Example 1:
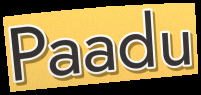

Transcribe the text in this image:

Paadu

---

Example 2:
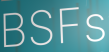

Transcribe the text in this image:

BSFs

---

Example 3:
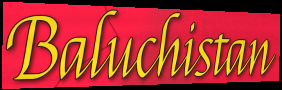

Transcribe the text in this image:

Baluchistan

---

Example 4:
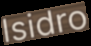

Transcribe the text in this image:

Isidro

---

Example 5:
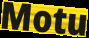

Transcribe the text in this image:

Motu